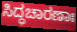
ಸಿದ್ಧಚಾರಣಾಃ